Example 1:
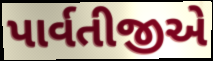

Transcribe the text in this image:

પાર્વતીજીએ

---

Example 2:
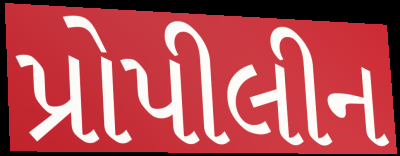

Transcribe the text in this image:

પ્રોપીલીન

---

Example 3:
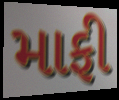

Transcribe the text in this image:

માફી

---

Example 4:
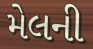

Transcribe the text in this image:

મેલની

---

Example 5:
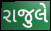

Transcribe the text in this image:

રાજુલે